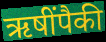
ऋषींपैकी